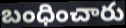
బంధించారు